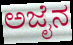
ಅಜೈನ